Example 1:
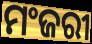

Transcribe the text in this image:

ମଂଜରୀ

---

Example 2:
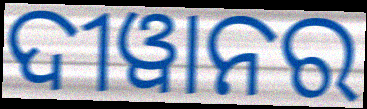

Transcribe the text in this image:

ଦୀୱାନର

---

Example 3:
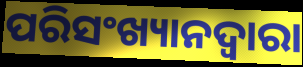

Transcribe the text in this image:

ପରିସଂଖ୍ୟାନଦ୍ଵାରା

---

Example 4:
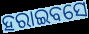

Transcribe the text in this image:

ହରାଇବସେ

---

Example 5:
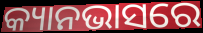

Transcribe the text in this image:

କ୍ୟାନଭାସରେ